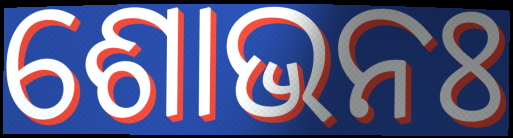
ଶୋଭନଃ